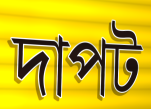
দাপট